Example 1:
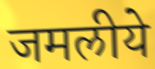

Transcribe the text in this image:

जमलीये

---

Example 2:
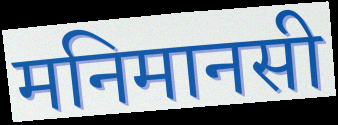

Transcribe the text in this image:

मनिमानसी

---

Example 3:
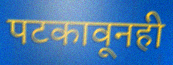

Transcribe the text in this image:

पटकावूनही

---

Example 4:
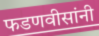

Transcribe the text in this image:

फडणवीसांनी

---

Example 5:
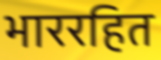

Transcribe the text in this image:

भाररहित